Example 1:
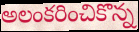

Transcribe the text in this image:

అలంకరించికొన్న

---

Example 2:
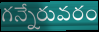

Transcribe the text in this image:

గన్నేరువరం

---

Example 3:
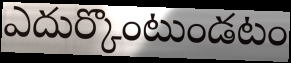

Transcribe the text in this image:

ఎదుర్కొంటుండటం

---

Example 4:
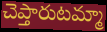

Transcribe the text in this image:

చెప్తారుటమ్మా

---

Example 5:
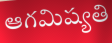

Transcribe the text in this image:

ఆగమిష్యతి